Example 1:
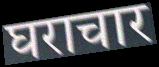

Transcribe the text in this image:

घराचार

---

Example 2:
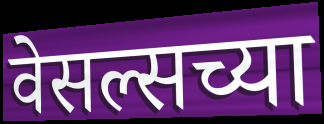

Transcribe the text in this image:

वेसल्सच्या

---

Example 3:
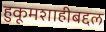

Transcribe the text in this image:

हुकूमशाहीबद्दल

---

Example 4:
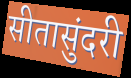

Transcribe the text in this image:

सीतासुंदरी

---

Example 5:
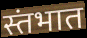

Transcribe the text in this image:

स्तंभात